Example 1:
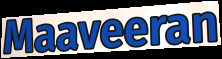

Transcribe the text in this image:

Maaveeran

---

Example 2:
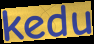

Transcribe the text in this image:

kedu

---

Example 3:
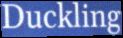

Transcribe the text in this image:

Duckling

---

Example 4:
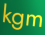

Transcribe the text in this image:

kgm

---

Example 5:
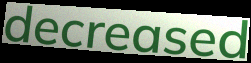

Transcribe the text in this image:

decreased